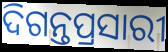
ଦିଗନ୍ତପ୍ରସାରୀ